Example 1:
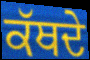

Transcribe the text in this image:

ਕੱਥਦੇ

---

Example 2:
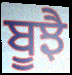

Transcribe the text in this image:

ਬੂਝੈ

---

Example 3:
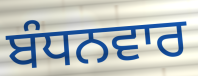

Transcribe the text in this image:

ਬੰਧਨਵਾਰ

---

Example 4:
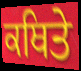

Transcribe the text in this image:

ਕਥਿਤੇ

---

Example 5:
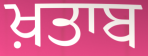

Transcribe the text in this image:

ਖ਼ਤਾਬ